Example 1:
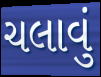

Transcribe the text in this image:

ચલાવું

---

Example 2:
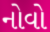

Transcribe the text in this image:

નોવો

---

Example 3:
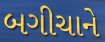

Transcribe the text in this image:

બગીચાને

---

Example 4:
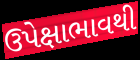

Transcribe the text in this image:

ઉપેક્ષાભાવથી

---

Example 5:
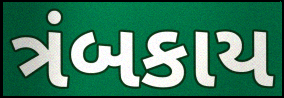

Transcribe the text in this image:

ત્રંબકાય